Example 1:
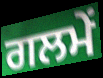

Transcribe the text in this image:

ਗਲਮੇਂ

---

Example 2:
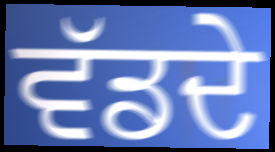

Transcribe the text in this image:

ਵੱਡਦੇ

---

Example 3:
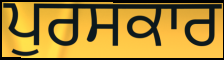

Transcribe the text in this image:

ਪੁਰਸਕਾਰ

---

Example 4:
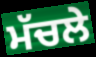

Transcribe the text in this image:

ਮੱਚਲੇ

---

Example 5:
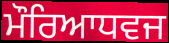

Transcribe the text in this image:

ਮੌਰਿਆਧਵਜ